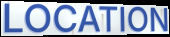
LOCATION